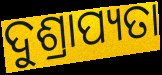
ଦୁଶ୍ରାପ୍ୟତା